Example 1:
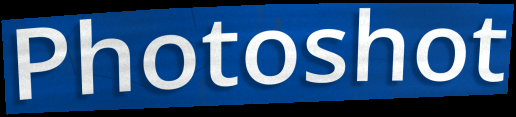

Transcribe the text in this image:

Photoshot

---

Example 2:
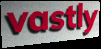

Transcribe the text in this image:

vastly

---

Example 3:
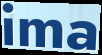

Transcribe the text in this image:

ima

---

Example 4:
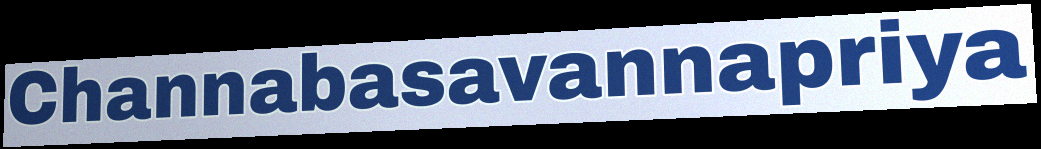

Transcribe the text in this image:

Channabasavannapriya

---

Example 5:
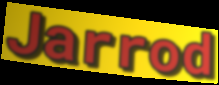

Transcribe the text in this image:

Jarrod